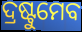
ଦ୍ରଷ୍ଟୁମେବ